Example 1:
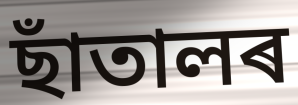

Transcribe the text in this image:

ছাঁতালৰ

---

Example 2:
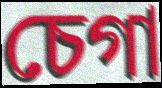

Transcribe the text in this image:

চেগা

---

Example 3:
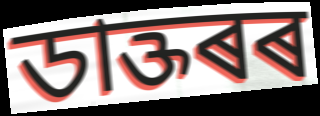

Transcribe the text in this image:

ডাক্তৰৰ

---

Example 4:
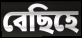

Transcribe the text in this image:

বেছিহে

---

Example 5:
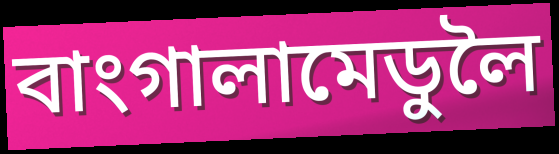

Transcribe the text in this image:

বাংগালামেডুলৈ